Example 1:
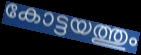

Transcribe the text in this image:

കോട്ടയത്തും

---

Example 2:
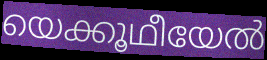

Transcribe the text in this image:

യെക്കൂഥീയേൽ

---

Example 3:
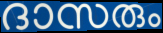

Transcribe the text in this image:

ദാസരും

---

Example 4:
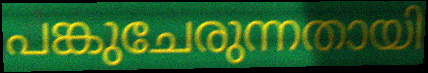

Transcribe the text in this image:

പങ്കുചേരുന്നതായി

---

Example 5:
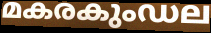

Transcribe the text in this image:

മകരകുംഡല